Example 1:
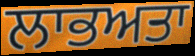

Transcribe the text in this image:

ਲਾਭਅਤਾ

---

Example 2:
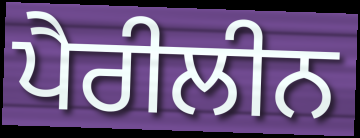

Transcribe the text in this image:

ਪੈਰੀਲੀਨ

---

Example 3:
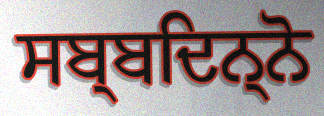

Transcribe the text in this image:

ਸਬ੍ਬਦਿਨ੍ਨੋ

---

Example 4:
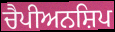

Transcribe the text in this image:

ਚੈਪੀਅਨਸ਼ਿਪ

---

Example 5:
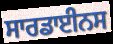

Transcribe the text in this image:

ਸਾਰਡਾਈਨਸ